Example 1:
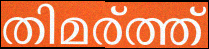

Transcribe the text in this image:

തിമര്ത്ത്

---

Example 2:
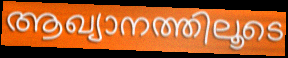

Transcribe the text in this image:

ആഖ്യാനത്തിലൂടെ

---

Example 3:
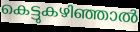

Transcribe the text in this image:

കെട്ടുകഴിഞ്ഞാൽ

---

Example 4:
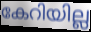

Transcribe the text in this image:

കേറിയില്ല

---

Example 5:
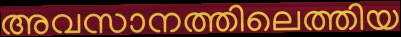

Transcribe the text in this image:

അവസാനത്തിലെത്തിയ